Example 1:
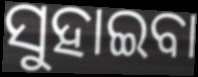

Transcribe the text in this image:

ସୁହାଇବା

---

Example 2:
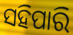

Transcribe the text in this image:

ସହିପାରି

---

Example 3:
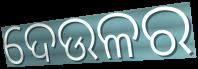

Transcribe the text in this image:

ଦେଉଳର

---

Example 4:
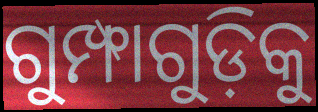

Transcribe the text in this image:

ଗୁମ୍ଫାଗୁଡ଼ିକୁ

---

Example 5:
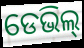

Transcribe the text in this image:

ଡେଭିଲ୍